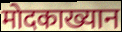
मोदकाख्यान